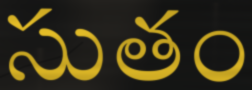
సుతం